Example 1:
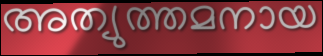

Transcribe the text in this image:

അത്യുത്തമനായ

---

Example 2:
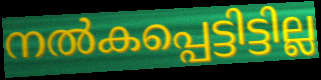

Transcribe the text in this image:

നൽകപ്പെട്ടിട്ടില്ല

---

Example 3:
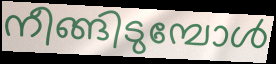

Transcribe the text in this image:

നീങ്ങിടുമ്പോൾ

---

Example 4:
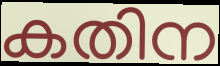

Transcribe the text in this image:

കതിന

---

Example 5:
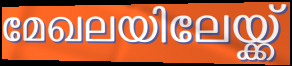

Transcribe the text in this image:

മേഖലയിലേയ്ക്ക്